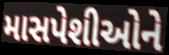
માસપેશીઓને